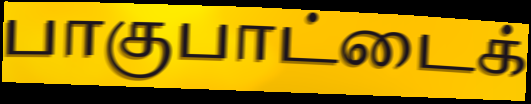
பாகுபாட்டைக்